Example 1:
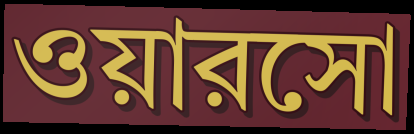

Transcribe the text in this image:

ওয়ারসো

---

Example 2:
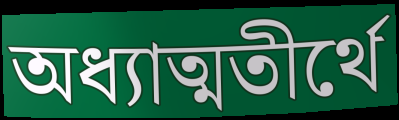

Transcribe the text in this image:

অধ্যাত্মতীর্থে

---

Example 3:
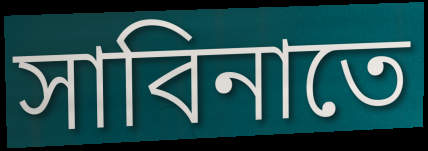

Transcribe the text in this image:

সাবিনাতে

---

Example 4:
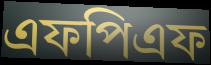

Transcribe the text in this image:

এফপিএফ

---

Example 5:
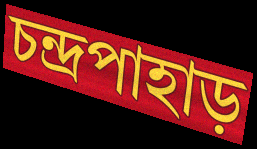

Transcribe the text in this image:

চন্দ্রপাহাড়